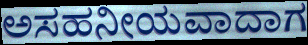
ಅಸಹನೀಯವಾದಾಗ